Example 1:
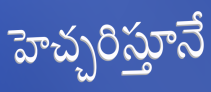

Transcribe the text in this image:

హెచ్చరిస్తూనే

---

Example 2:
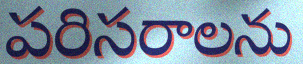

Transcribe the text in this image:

పరిసరాలను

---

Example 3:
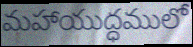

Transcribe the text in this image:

మహాయుద్ధములో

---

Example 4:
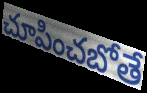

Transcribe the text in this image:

చూపించబోతే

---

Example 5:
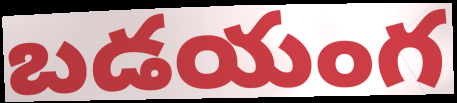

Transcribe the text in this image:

బడయంగ